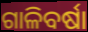
ଗାଳିବର୍ଷା